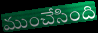
ముంచేసింది